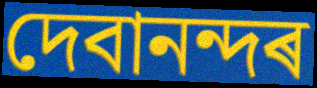
দেবানন্দৰ